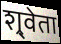
श्र्वेता